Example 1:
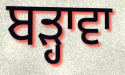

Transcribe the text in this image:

ਬੜ੍ਹਾਵਾ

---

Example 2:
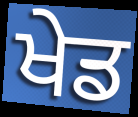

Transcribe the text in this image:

ਖੇਡ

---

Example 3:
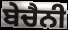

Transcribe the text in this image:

ਬੇਚੈਨੀ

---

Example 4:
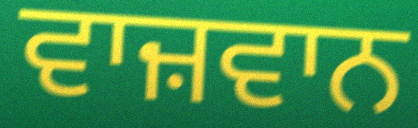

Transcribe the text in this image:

ਵਾਜ਼ਵਾਨ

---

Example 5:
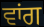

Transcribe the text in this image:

ਵਾਂਗ